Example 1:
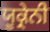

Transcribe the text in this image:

ਯੂਕ੍ਰੇਨੀ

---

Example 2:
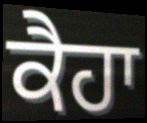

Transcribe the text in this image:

ਕੈਹਾ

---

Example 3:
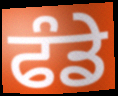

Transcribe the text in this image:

ਫੰਡੇ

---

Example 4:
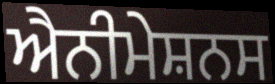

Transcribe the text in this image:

ਐਨੀਮੇਸ਼ਨਸ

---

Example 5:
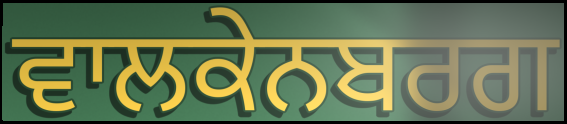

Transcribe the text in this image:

ਵਾਲਕੇਨਬਰਗ